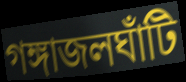
গঙ্গাজলঘাঁটি